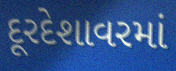
દૂરદેશાવરમાં